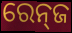
ରେନ୍‍ଜ